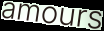
amours